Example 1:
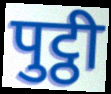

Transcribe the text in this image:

पुट्ठी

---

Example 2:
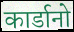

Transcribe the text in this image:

कार्डानो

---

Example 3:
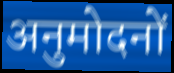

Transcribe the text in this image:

अनुमोदनों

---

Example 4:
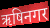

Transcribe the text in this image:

ऋषिनगर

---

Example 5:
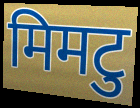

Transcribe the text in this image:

मिमटु